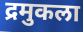
द्रमुकला